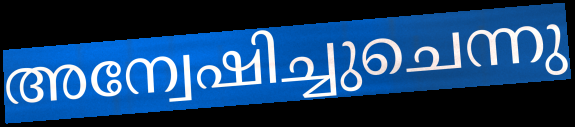
അന്വേഷിച്ചുചെന്നു